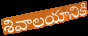
శివాలయానికి